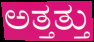
ಅತ್ತತ್ತು